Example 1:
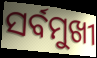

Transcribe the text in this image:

ସର୍ବମୁଖୀ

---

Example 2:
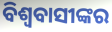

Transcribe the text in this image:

ବିଶ୍ୱବାସୀଙ୍କର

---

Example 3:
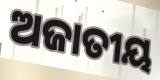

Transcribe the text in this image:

ଅଜାତୀୟ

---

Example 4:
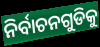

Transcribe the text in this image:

ନିର୍ବାଚନଗୁଡିକୁ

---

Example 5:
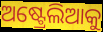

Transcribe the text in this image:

ଅଷ୍ଟ୍ରେଲିଆକୁ